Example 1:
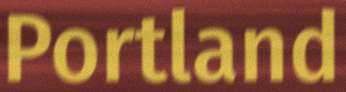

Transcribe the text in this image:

Portland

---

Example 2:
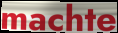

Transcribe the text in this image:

machte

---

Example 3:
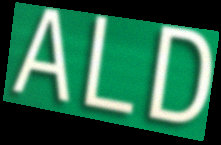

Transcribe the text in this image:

ALD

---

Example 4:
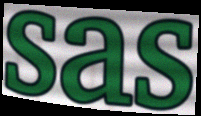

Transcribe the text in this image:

sas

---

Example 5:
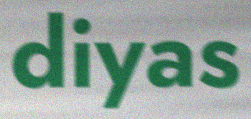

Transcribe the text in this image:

diyas